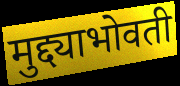
मुद्द्याभोवती